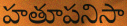
హతూపనిసా